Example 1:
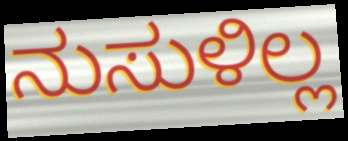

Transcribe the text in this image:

ನುಸುಳಿಲ್ಲ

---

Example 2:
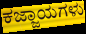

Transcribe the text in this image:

ಕಜ್ಜಾಯಗಳು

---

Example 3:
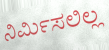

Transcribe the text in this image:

ನಿರ್ಮಿಸಲಿಲ್ಲ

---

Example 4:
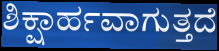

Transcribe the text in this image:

ಶಿಕ್ಷಾರ್ಹವಾಗುತ್ತದೆ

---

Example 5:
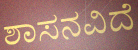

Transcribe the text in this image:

ಶಾಸನವಿದೆ